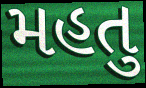
મહતુ